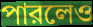
পারলেও